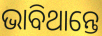
ଭାବିଥାନ୍ତେ